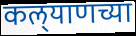
कल्याणच्या